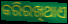
କରିରଖିଥାଏ